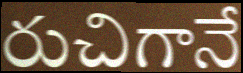
రుచిగానే